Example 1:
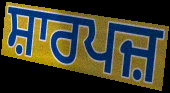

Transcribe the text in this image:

ਸ਼ਾਰਪਜ਼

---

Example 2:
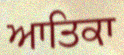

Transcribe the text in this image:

ਆਤਿਕਾ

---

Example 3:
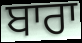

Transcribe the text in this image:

ਬਾਰਾ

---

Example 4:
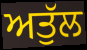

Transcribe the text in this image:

ਅਤੁੱਲ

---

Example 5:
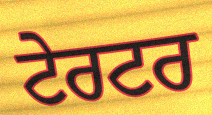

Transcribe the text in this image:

ਟੇਰਟਰ